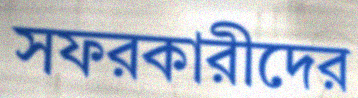
সফরকারীদের